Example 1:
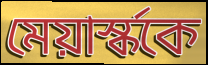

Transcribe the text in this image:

মেয়ার্স্ককে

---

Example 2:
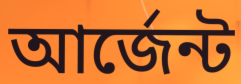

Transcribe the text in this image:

আর্জেন্ট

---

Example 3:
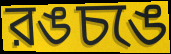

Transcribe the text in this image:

রঙচঙে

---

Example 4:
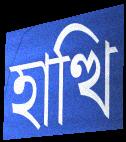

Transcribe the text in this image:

হাত্থি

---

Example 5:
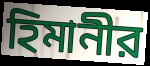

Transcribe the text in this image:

হিমানীর